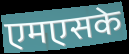
एमएसके